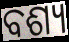
ବଶ୍ୟ